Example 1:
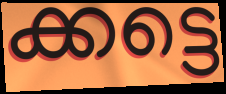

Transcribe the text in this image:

ക്കട്ടെ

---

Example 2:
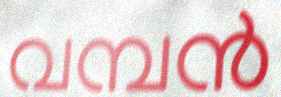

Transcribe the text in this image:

വമ്പൻ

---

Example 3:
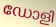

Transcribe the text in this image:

ഡോളി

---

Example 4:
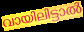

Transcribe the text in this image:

വായിലിട്ടാൽ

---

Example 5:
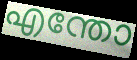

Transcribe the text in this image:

എന്തോ